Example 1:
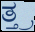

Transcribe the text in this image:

ತ್ತ್ರ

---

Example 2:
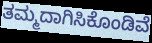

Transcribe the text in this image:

ತಮ್ಮದಾಗಿಸಿಕೊಂಡಿವೆ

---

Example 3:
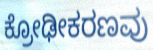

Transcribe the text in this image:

ಕ್ರೋಢೀಕರಣವು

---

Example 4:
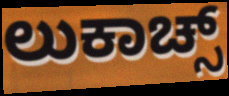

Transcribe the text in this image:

ಲುಕಾಚ್ಸ್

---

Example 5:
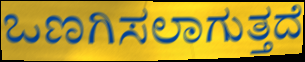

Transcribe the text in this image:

ಒಣಗಿಸಲಾಗುತ್ತದೆ